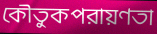
কৌতুকপরায়ণতা